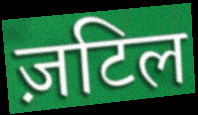
ज़टिल